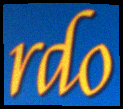
rdo